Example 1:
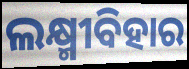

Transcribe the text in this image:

ଲକ୍ଷ୍ମୀବିହାର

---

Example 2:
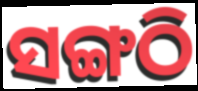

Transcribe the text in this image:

ସଙ୍ଗଠି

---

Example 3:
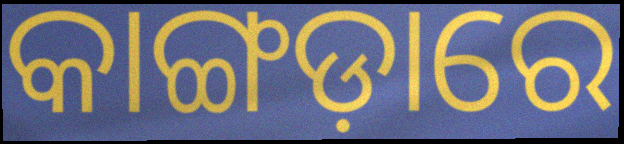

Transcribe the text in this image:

କାଙ୍ଗଡ଼ାରେ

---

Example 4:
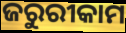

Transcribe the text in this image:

ଜରୁରୀକାମ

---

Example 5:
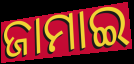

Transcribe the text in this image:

ଜାମାଇ